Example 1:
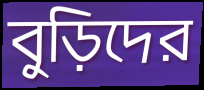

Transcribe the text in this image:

বুড়িদের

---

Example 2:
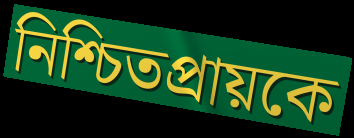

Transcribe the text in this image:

নিশ্চিতপ্রায়কে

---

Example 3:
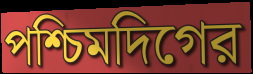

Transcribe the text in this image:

পশ্চিমদিগের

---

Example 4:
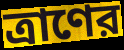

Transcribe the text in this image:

ত্রাণের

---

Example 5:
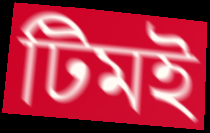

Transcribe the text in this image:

টিমই